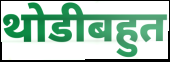
थोडीबहुत